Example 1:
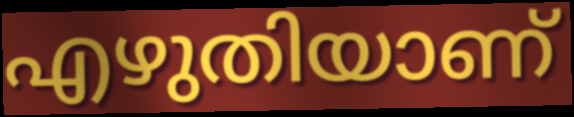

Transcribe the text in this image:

എഴുതിയാണ്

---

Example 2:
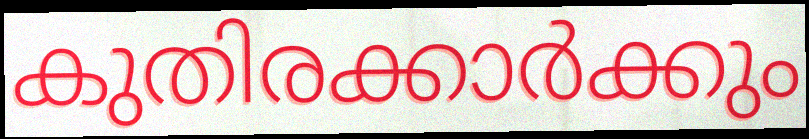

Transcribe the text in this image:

കുതിരക്കാർക്കും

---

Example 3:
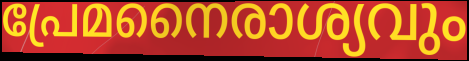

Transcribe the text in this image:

പ്രേമനൈരാശ്യവും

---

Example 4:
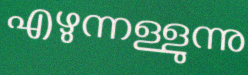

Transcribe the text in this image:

എഴുന്നള്ളുന്നു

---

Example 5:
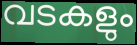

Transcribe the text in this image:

വടകളും